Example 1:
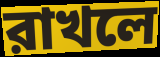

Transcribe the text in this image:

রাখলে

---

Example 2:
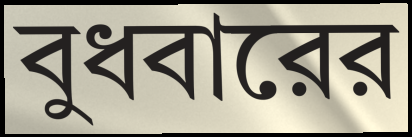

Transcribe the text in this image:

বুধবারের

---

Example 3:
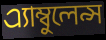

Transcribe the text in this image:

এ্যাম্বুলেন্স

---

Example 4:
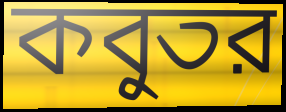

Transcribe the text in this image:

কবুতর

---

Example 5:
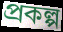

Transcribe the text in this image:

প্রকল্প